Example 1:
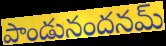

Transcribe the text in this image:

పాండునందనమ్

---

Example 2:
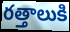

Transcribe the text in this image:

రత్తాలుకి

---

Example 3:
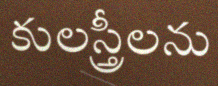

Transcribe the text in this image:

కులస్త్రీలను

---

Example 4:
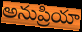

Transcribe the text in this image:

అనుప్రియా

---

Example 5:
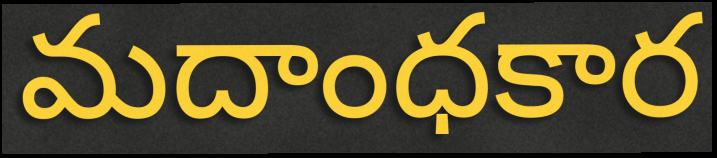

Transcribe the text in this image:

మదాంధకార